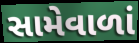
સામેવાળાં